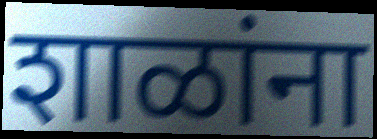
शाळांना